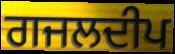
ਗਜਲਦੀਪ